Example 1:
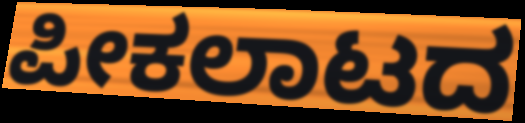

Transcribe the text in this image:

ಪೀಕಲಾಟದ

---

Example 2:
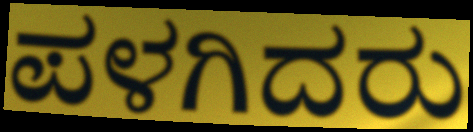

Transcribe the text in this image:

ಪಳಗಿದರು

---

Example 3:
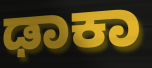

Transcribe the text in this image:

ಢಾಕಾ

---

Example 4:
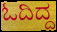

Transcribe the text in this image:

ಓದಿದ್ದ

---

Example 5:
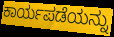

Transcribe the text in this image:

ಕಾರ್ಯಪಡೆಯನ್ನು